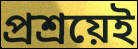
প্রশ্রয়েই